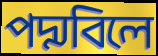
পদ্মবিলে